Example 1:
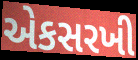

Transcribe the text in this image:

એકસરખી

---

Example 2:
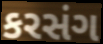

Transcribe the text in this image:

કરસંગ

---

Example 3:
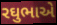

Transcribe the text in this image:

રઘુભાએ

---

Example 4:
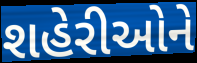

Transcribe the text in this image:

શહેરીઓને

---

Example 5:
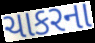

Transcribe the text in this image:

ચાકરના